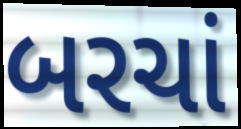
બરચાં